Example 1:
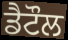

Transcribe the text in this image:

ਡੈਟੌਲ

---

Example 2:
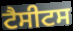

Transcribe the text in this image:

ਟੈਸੀਟਸ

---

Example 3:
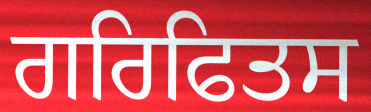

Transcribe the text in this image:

ਗਰਿਫਿਤਸ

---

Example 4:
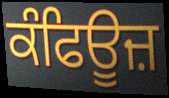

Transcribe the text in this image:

ਕੰਫਿਊਜ਼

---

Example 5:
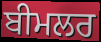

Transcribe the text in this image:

ਬੀਮਲਰ